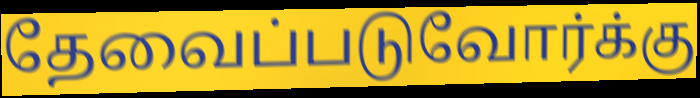
தேவைப்படுவோர்க்கு